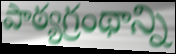
పాఠ్యగ్రంథాన్ని